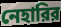
নেহারির